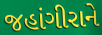
જહાંગીરાને